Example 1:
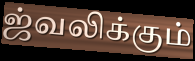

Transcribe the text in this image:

ஜ்வலிக்கும்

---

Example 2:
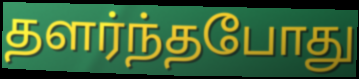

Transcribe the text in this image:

தளர்ந்தபோது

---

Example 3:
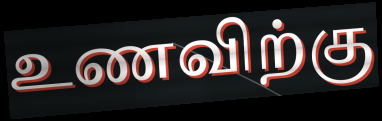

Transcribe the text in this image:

உணவிற்கு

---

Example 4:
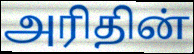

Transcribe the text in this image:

அரிதின்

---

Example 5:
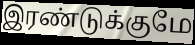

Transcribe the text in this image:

இரண்டுக்குமே